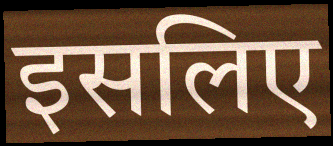
इसलिए